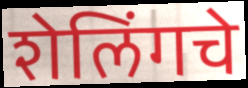
शेलिंगचे